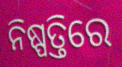
ନିଷ୍ପତ୍ତିରେ